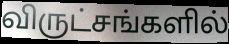
விருட்சங்களில்